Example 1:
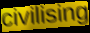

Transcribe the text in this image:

civilising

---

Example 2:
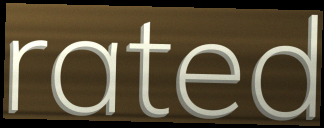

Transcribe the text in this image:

rated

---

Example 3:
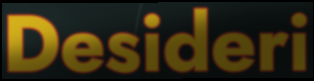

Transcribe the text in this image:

Desideri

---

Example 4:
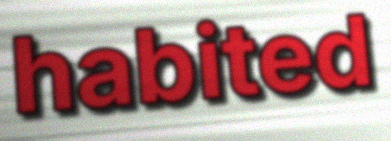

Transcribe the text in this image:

habited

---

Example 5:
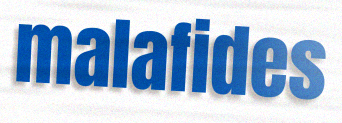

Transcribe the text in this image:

malafides